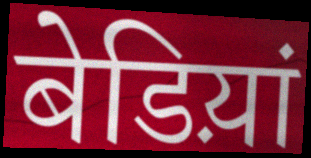
बेडिय़ां